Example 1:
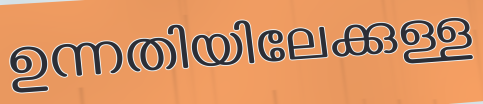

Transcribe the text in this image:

ഉന്നതിയിലേക്കുള്ള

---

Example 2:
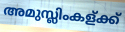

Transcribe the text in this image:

അമുസ്ലിംകള്ക്ക്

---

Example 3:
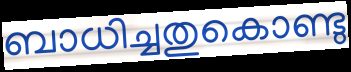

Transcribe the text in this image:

ബാധിച്ചതുകൊണ്ടു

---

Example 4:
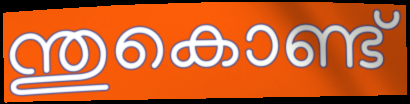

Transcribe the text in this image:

ന്തുകൊണ്ട്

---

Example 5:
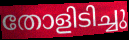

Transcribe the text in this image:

തോളിടിച്ചു